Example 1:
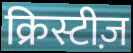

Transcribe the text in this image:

क्रिस्टीज़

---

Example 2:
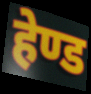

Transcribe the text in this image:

हेण्ड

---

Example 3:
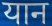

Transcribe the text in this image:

यान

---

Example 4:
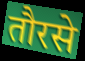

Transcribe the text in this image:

तौरसे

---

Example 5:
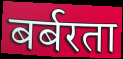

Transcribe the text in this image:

बर्बरता